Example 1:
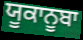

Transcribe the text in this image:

ਯੂਕਾਨੂਬਾ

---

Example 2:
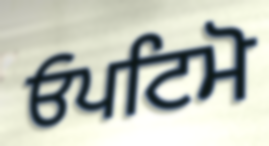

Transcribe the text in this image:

ਓਪਟਿਮੋ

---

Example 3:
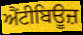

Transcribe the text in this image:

ਐਂਟੀਬਿਊਜ਼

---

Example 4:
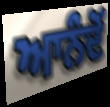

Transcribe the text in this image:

ਆਨੰਦੋਂ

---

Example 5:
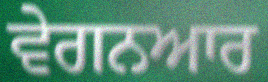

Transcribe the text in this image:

ਵੇਗਨਆਰ